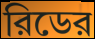
রিডের